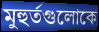
মুহুর্তগুলোকে